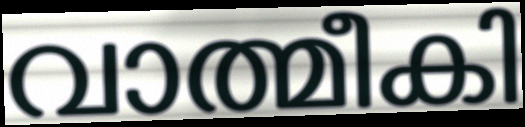
വാത്മീകി